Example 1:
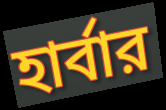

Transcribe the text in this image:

হার্বার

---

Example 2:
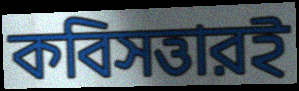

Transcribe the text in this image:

কবিসত্তারই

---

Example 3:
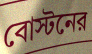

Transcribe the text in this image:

বোস্টনের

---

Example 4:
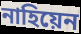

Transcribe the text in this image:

নাহিয়েন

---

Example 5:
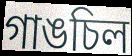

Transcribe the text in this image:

গাঙচিল